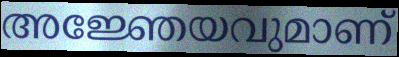
അജ്ഞേയവുമാണ്